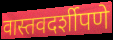
वास्तवदर्शीपणे